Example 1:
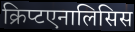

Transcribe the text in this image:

क्रिप्टएनालिसिस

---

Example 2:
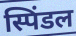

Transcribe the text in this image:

स्पिंडल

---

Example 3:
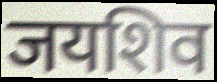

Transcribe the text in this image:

जयशिव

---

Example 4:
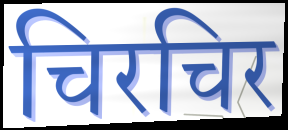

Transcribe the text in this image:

चिरचिर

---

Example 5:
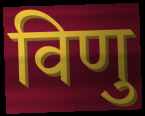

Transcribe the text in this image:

विणु